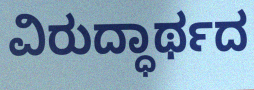
ವಿರುದ್ಧಾರ್ಥದ